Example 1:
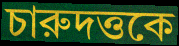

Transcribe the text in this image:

চারুদত্তকে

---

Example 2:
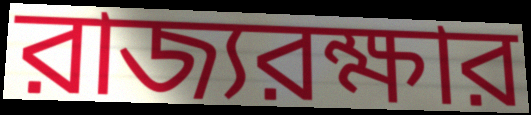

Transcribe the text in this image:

রাজ্যরক্ষার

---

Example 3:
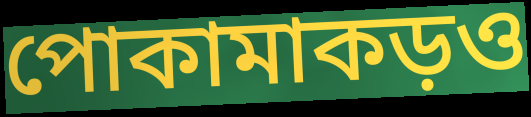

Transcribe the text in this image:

পোকামাকড়ও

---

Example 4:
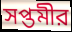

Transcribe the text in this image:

সপ্তমীর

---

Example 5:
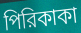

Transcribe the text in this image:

পিরিকাকা